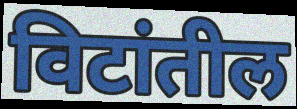
विटांतील